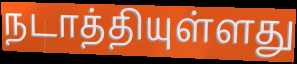
நடாத்தியுள்ளது